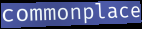
commonplace